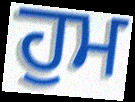
ਹੁਮ